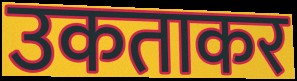
उकताकर